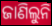
ଜାଣିଲୁନି